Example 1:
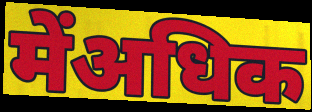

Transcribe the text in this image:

मेंअधिक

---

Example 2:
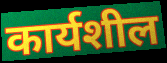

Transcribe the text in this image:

कार्यशील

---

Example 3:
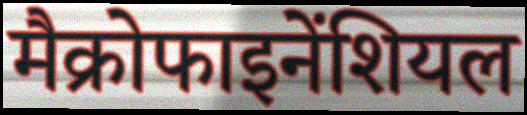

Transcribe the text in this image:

मैक्रोफाइनेंशियल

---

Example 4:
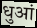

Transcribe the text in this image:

धुआं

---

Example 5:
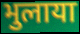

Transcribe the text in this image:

भुलाया